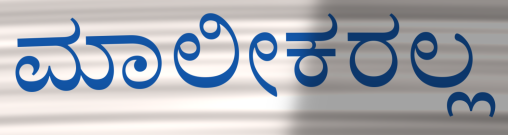
ಮಾಲೀಕರಲ್ಲ